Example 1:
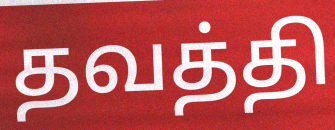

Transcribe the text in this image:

தவத்தி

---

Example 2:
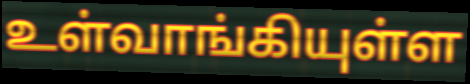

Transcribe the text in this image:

உள்வாங்கியுள்ள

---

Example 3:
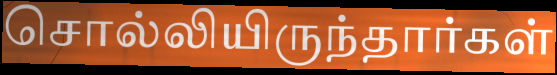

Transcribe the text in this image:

சொல்லியிருந்தார்கள்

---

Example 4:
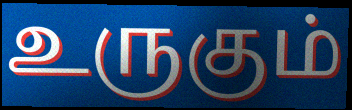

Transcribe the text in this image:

உருகும்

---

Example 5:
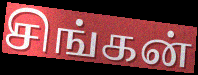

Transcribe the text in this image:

சிங்கன்